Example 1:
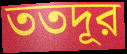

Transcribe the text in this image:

ততদূর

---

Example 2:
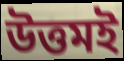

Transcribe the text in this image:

উত্তমই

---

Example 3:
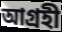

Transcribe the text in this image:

আগ্রহী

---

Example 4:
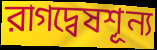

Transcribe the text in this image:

রাগদ্বেষশূন্য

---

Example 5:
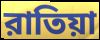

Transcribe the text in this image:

রাতিয়া